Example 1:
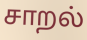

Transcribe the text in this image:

சாறல்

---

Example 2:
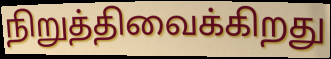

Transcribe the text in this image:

நிறுத்திவைக்கிறது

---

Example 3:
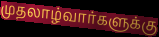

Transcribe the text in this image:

முதலாழ்வார்களுக்கு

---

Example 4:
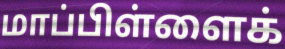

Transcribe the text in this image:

மாப்பிள்ளைக்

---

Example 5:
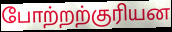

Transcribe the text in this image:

போற்றற்குரியன